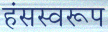
हंसस्वरूप